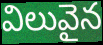
విలువైన